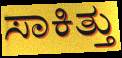
ಸಾಕಿತ್ತು